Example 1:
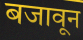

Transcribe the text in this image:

बजावून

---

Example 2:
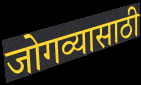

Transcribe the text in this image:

जोगव्यासाठी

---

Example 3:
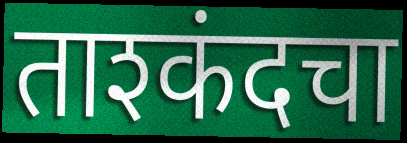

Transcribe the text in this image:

ताश्कंदचा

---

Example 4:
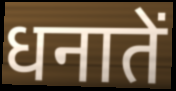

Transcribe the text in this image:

धनातें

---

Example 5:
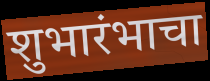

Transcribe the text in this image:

शुभारंभाचा